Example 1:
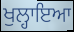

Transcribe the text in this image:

ਖੁਲ੍ਹਾਇਆ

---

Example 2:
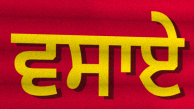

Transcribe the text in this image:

ਵਸਾਏ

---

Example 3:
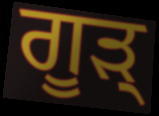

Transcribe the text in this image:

ਗੂੜ੍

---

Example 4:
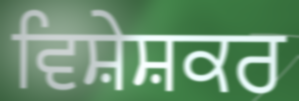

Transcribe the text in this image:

ਵਿਸ਼ੇਸ਼ਕਰ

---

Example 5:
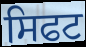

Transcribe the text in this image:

ਸਿਫਟ